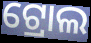
ଟ୍ରୋଲ